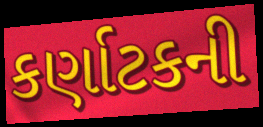
કર્ણાટકની